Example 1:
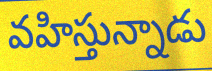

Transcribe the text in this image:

వహిస్తున్నాడు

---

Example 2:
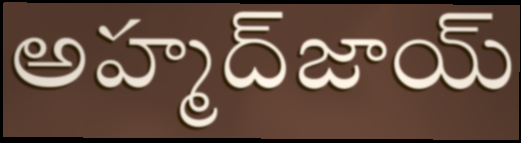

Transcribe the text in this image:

అహ్మద్‌జాయ్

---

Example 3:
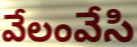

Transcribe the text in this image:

వేలంవేసి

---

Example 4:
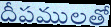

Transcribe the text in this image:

దీపములతో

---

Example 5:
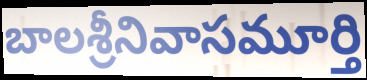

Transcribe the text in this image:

బాలశ్రీనివాసమూర్తి